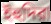
ইহুদিরা